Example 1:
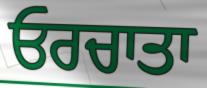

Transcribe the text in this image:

ਓਰਚਾਤਾ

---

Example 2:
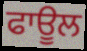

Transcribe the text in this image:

ਫਾਊਲ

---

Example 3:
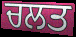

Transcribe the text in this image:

ਚਲਤ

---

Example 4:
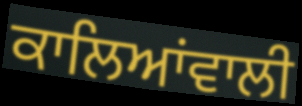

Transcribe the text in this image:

ਕਾਲਿਆਂਵਾਲੀ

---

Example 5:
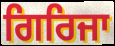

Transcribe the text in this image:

ਗਿਰਿਜਾ